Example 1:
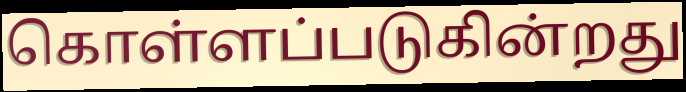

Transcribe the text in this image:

கொள்ளப்படுகின்றது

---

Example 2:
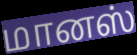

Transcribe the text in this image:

மானஸ்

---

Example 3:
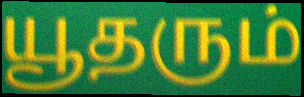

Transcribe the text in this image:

யூதரும்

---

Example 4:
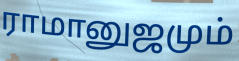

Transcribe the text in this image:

ராமானுஜமும்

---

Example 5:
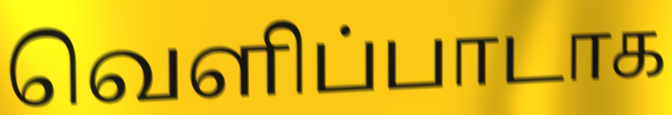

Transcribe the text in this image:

வெளிப்பாடாக